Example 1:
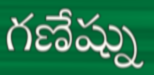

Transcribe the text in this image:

గణేష్ను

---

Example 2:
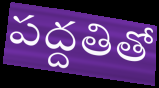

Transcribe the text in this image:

పద్దతితో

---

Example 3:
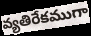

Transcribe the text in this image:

వ్యతిరేకముగా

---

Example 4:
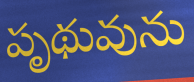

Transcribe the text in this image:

పృథువును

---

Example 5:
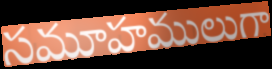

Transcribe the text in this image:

సమూహములుగా